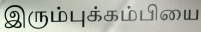
இரும்புக்கம்பியை